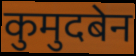
कुमुदबेन